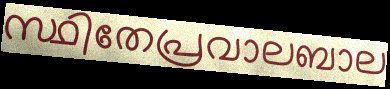
സ്ഥിതേപ്രവാലബാല